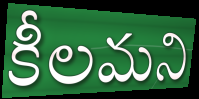
కీలమని